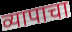
व्यापाचा